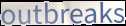
outbreaks